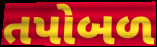
તપોબળ